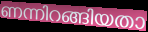
ണന്നിറങ്ങിയതാ